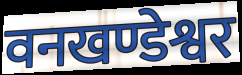
वनखण्डेश्वर